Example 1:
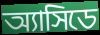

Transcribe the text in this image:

অ্যাসিডে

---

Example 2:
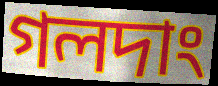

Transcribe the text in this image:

গলদাং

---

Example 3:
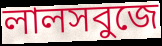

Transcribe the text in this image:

লালসবুজে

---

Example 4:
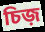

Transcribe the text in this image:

চিজ়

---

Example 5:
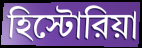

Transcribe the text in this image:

হিস্টোরিয়া